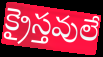
క్రైస్తవులే